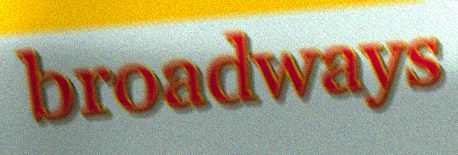
broadways